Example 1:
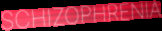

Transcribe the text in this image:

SCHIZOPHRENIA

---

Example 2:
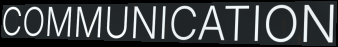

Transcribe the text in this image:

COMMUNICATION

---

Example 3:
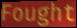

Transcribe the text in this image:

Fought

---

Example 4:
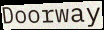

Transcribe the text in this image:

Doorway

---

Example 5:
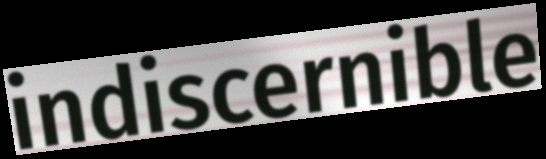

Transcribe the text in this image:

indiscernible